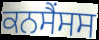
ਕਨਸੈਂਸਸ